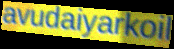
avudaiyarkoil